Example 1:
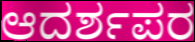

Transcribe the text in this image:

ಆದರ್ಶಪರ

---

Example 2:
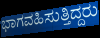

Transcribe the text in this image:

ಭಾಗವಹಿಸುತ್ತಿದ್ದರು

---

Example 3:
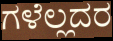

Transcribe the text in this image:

ಗಳೆಲ್ಲದರ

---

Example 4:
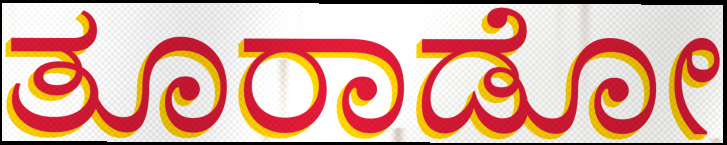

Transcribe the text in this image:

ತೂರಾಡೋ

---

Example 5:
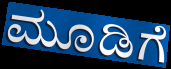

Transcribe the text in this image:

ಮೂಡಿಗೆ